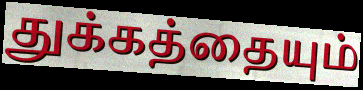
துக்கத்தையும்